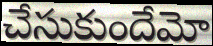
చేసుకుందేమో